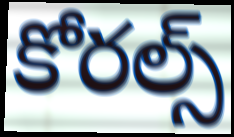
కోరల్స్